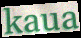
kaua